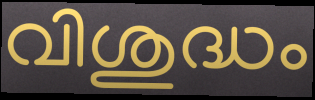
വിശുദ്ധം